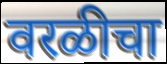
वरळीचा